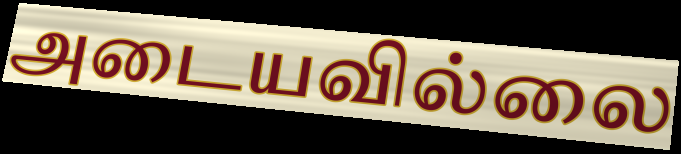
அடையவில்லை